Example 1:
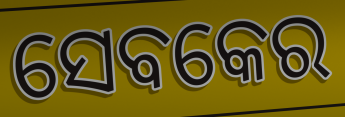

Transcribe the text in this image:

ସେବକେର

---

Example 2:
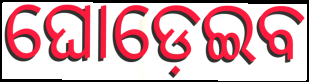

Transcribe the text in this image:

ଘୋଡ଼େଇବ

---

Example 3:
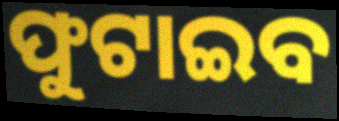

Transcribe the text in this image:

ଫୁଟାଇବ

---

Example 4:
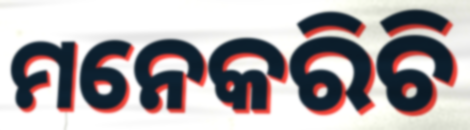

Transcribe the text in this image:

ମନେକରିଚି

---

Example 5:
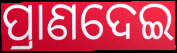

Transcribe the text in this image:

ପ୍ରାଣଦେଇ